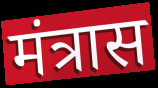
मंत्रास